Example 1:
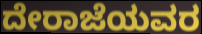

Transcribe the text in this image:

ದೇರಾಜೆಯವರ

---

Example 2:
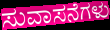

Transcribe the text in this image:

ಸುವಾಸನೆಗಳು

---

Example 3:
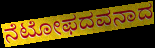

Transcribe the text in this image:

ನೆಟೋಫದವನಾದ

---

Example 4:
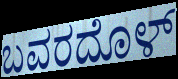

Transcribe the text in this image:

ಬವರದೊಳ್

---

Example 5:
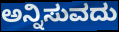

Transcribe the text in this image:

ಅನ್ನಿಸುವದು